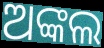
ଅଙ୍କଲ